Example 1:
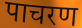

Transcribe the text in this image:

पाचरण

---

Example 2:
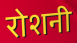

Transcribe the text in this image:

रोशनी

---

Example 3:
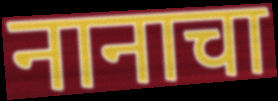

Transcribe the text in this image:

नानाचा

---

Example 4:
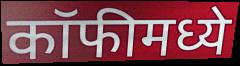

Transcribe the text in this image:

कॉफीमध्ये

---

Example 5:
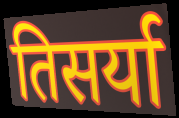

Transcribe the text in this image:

तिसर्या